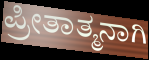
ಪ್ರೀತಾತ್ಮನಾಗಿ